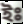
ইঃ